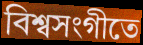
বিশ্বসংগীতে